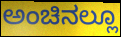
ಅಂಚಿನಲ್ಲೂ